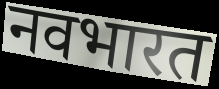
नवभारत